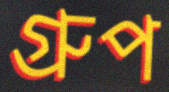
গ্রুপ